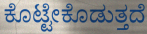
ಕೊಟ್ಟೇಕೊಡುತ್ತದೆ